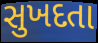
સુખદતા